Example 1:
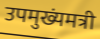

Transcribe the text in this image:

उपमुख्यंमत्री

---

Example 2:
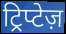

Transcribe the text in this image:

ट्रिप्टेज़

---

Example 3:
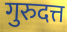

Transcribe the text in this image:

गुरुदत्त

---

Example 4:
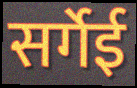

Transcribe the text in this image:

सर्गेई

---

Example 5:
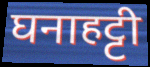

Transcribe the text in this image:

घनाहट्टी